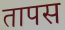
तापस